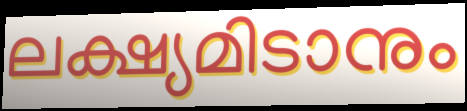
ലക്ഷ്യമിടാനും